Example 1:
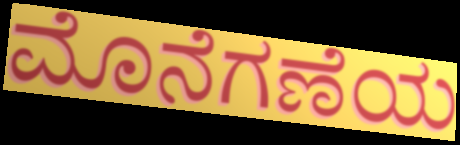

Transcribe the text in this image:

ಮೊನೆಗಣೆಯ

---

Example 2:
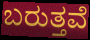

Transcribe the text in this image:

ಬರುತ್ತವೆ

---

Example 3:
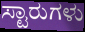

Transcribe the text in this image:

ಸ್ಟಾರುಗಳು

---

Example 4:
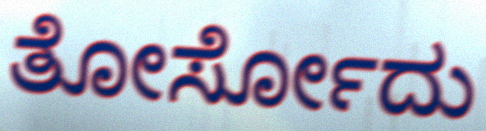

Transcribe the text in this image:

ತೋರ್ಸೋದು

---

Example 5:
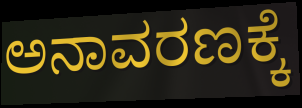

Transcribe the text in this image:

ಅನಾವರಣಕ್ಕೆ